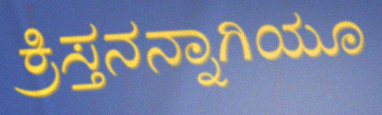
ಕ್ರಿಸ್ತನನ್ನಾಗಿಯೂ